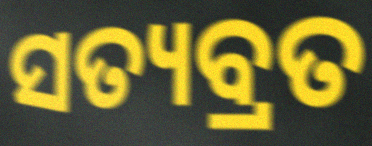
ସତ୍ୟବ୍ରତ